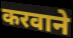
करवाने